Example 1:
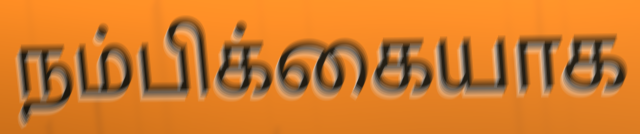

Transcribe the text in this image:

நம்பிக்கையாக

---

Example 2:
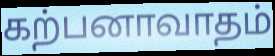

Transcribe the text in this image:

கற்பனாவாதம்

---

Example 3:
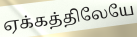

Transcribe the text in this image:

ஏக்கத்திலேயே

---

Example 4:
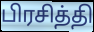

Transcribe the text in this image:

பிரசித்தி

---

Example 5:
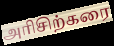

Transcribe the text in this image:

அரிசிற்கரை